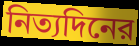
নিত্যদিনের